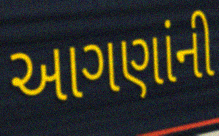
આગણાંની